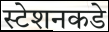
स्टेशनकडे